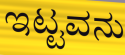
ಇಟ್ಟವನು